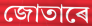
জোতাৰে